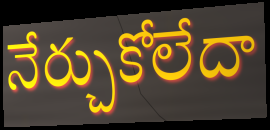
నేర్చుకోలేదా